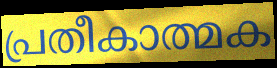
പ്രതീകാത്മക